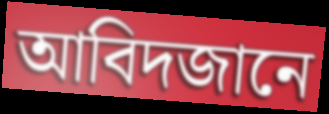
আবিদজানে